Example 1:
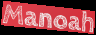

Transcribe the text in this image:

Manoah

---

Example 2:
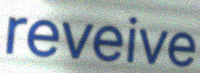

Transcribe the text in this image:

reveive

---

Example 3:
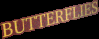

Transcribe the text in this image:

BUTTERFLIES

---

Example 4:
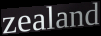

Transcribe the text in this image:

zealand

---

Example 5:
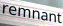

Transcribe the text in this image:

remnant